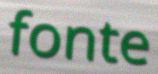
fonte